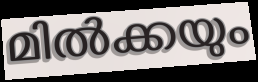
മിൽക്കയും